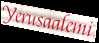
Yerusaalemi